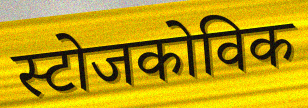
स्टोजकोविक